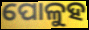
ପୋଳୁହ